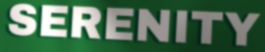
SERENITY